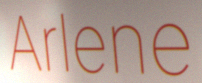
Arlene